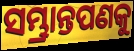
ସମ୍ଭ୍ରାନ୍ତପଣକୁ